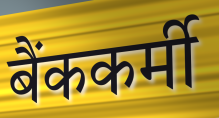
बैंककर्मी